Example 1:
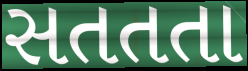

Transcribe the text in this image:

સતતતા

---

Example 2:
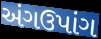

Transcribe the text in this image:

અંગઉપાંગ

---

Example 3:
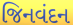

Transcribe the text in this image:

જિનવંદન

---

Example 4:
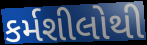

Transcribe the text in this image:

કર્મશીલોથી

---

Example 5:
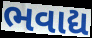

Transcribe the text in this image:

ભવાદ્ય